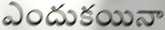
ఎందుకయినా